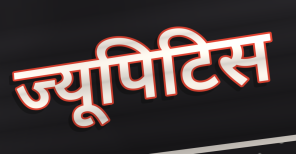
ज्यूपिटिस